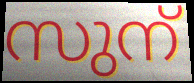
സുന്